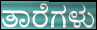
ತಾರೆಗಳು